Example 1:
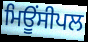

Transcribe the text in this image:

ਮਿਊਂਸੀਪਲ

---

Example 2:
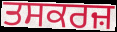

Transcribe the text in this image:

ਤਸਕਰਜ਼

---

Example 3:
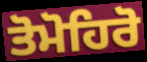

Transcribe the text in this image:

ਤੋਮੋਹਿਰੋ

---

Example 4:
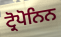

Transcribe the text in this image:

ਟ੍ਰੋਪੋਨਿਨ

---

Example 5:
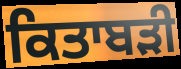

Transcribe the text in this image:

ਕਿਤਾਬੜੀ